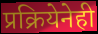
प्रक्रियेनेही